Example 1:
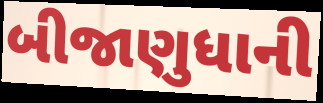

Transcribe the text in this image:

બીજાણુધાની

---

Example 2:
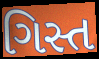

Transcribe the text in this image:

ગિસ્ત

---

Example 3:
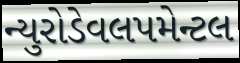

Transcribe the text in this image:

ન્યુરોડેવલપમેન્ટલ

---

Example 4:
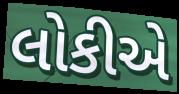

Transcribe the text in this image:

લોકીએ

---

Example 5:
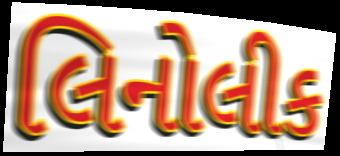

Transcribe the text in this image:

લિનોલીક